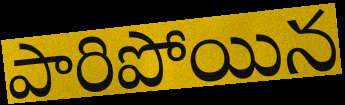
పారిపోయిన